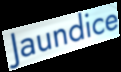
Jaundice